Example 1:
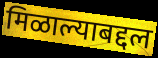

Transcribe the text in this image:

मिळाल्याबद्दल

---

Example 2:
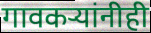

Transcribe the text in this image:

गावकऱ्यांनीही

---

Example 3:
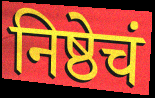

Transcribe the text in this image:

निष्ठेचं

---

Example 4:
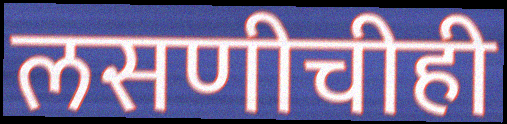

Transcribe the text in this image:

लसणीचीही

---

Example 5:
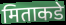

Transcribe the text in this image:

मिताकडे